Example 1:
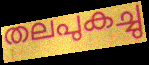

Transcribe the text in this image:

തലപുകച്ചു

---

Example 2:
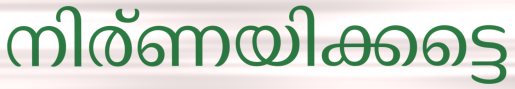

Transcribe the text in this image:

നിര്ണയിക്കട്ടെ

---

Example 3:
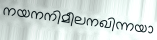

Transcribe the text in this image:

നയനനിമീലനഖിന്നയാ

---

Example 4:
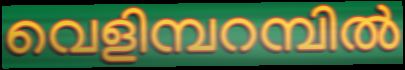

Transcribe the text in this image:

വെളിമ്പറമ്പിൽ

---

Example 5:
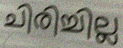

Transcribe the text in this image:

ചിരിച്ചില്ല